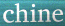
chine